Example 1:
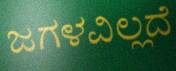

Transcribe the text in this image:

ಜಗಳವಿಲ್ಲದೆ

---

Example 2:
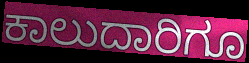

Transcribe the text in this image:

ಕಾಲುದಾರಿಗೂ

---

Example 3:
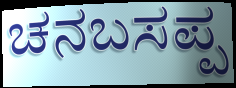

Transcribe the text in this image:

ಚನಬಸಪ್ಪ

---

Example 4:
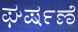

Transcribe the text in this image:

ಘರ್ಷಣೆ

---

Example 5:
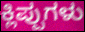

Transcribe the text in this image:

ಕ್ಲಿಪ್ಪುಗಳು